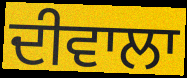
ਦੀਵਾਲਾ